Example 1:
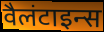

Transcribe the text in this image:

वैलंटाइन्स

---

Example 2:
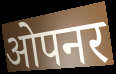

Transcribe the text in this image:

ओपनर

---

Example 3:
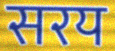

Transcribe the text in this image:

सरय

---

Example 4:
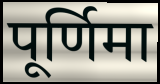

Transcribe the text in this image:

पूर्णिमा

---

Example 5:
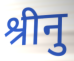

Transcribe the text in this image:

श्रीनु